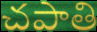
చపాతి